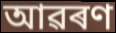
আৱৰণ